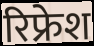
रिफ्रेश